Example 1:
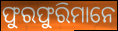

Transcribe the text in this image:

ଫୁରଫୁରିମାନେ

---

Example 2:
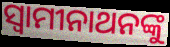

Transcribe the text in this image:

ସ୍ୱାମୀନାଥନଙ୍କୁ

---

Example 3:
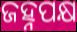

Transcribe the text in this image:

ଜହ୍ନପକ୍ଷ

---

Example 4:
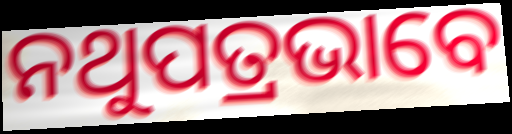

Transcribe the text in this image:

ନଥୁପତ୍ରଭାବେ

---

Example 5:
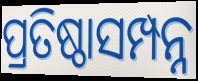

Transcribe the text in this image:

ପ୍ରତିଷ୍ଠାସମ୍ପନ୍ନ